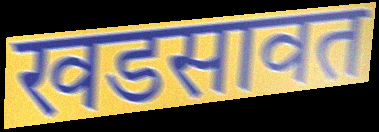
खडसावत